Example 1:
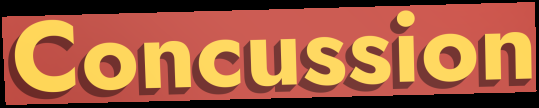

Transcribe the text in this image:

Concussion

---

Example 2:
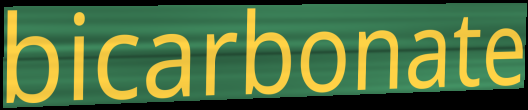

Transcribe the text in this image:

bicarbonate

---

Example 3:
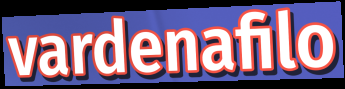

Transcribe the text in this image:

vardenafilo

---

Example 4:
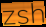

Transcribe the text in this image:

zsh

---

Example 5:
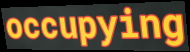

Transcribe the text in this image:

occupying